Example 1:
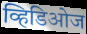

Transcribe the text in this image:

व्हिडिओज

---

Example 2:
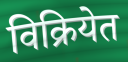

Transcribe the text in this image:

विक्रियेत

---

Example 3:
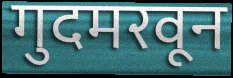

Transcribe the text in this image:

गुदमरवून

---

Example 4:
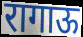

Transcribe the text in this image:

रागाऊ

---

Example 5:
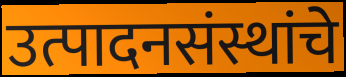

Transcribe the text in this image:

उत्पादनसंस्थांचे